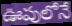
ఊపులోనే